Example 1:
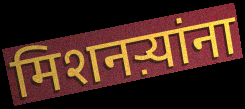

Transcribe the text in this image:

मिशनऱ्‍यांना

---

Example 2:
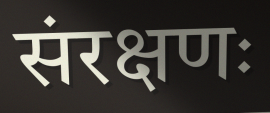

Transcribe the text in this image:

संरक्षणः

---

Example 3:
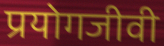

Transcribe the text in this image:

प्रयोगजीवी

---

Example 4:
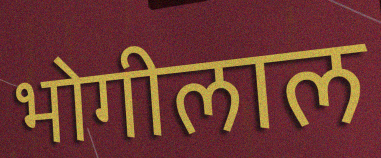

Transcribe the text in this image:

भोगीलाल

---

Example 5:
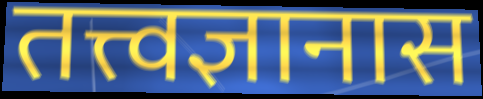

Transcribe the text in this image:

तत्त्वज्ञानास